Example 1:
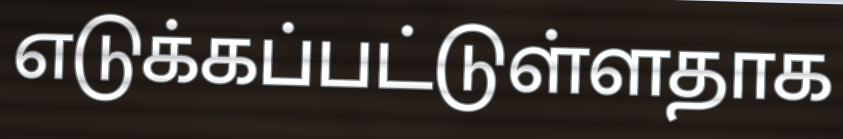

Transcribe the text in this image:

எடுக்கப்பட்டுள்ளதாக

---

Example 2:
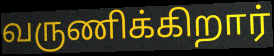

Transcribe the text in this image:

வருணிக்கிறார்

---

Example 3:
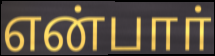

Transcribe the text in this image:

என்பார்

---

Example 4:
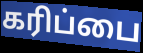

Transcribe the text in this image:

கரிப்பை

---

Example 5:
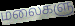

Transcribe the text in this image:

மலைகளு